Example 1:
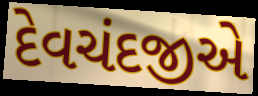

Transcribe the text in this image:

દેવચંદજીએ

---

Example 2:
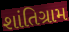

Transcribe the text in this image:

શાંતિગ્રામ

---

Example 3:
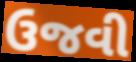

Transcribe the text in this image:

ઉજવી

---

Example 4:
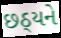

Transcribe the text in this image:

છઠ્યને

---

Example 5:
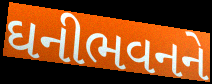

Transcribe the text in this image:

ઘનીભવનને